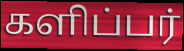
களிப்பர்